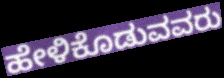
ಹೇಳಿಕೊಡುವವರು